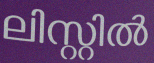
ലിസ്റ്റിൽ